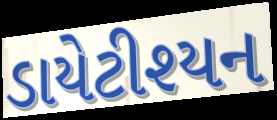
ડાયેટીશ્યન